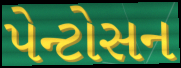
પેન્ટોસન